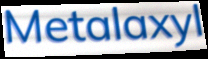
Metalaxyl